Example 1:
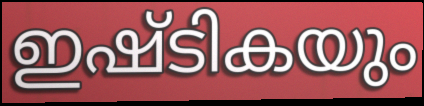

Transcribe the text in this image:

ഇഷ്ടികയും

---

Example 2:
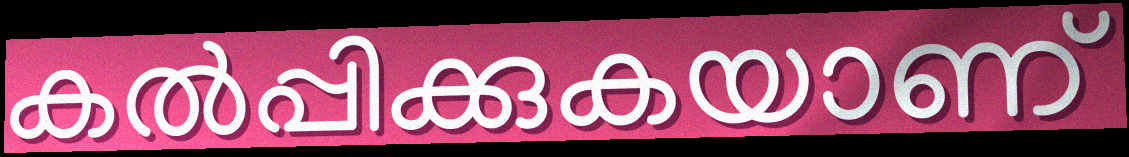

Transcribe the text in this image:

കൽപ്പിക്കുകയാണ്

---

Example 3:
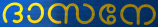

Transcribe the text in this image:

ദാസനേ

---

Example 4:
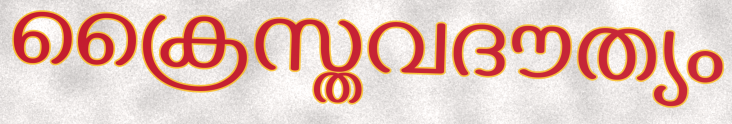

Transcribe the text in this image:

ക്രൈസ്തവദൗത്യം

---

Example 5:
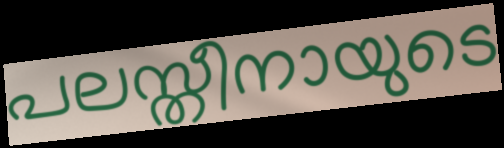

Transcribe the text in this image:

പലസ്തീനായുടെ